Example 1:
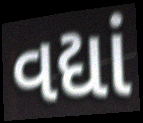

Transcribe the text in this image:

વદ્યાં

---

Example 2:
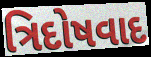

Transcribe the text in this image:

ત્રિદોષવાદ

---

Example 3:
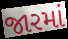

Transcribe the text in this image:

જારમાં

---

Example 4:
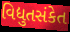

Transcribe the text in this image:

વિદ્યુતસંકેત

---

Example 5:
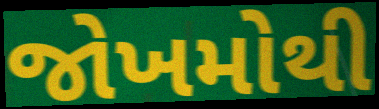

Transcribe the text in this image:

જોખમોથી